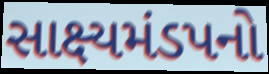
સાક્ષ્યમંડપનો